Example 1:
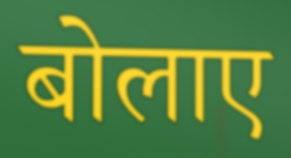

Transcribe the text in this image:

बोलाए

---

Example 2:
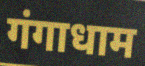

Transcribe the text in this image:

गंगाधाम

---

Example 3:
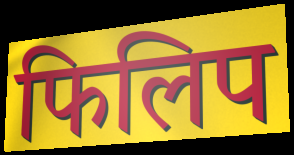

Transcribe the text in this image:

फिलिप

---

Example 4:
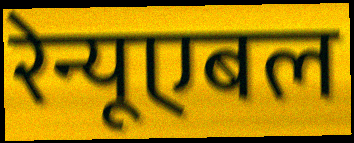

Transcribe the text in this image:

रेन्यूएबल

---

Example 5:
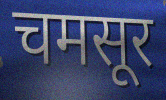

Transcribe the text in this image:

चमसूर